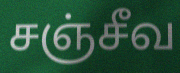
சஞ்சீவ